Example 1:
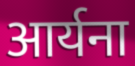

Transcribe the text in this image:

आर्यना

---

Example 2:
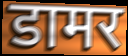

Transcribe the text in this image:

डामर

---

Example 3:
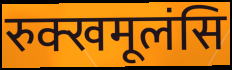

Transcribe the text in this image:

रुक्खमूलंसि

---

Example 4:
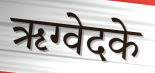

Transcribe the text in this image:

ऋग्वेदके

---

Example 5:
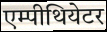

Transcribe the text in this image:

एम्पीथियेटर